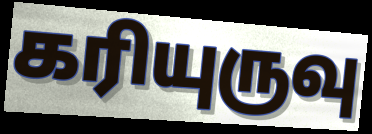
கரியுருவு